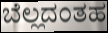
ಬೆಲ್ಲದಂತಹ